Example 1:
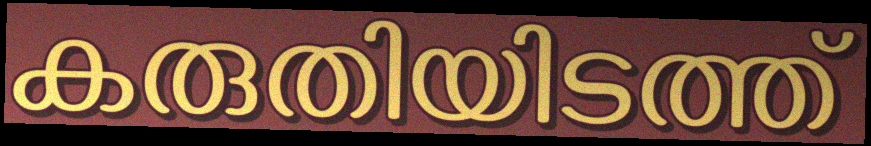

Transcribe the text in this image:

കരുതിയിടത്ത്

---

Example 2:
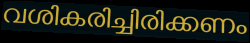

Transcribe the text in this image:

വശികരിച്ചിരിക്കണം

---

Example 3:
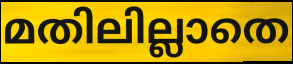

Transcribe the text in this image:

മതിലില്ലാതെ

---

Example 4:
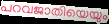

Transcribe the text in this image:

പറവജാതിയെയും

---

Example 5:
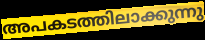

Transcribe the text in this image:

അപകടത്തിലാക്കുന്നു